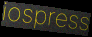
iospress